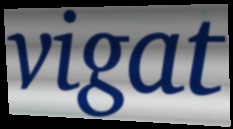
vigat